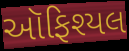
ઑફિશ્યલ